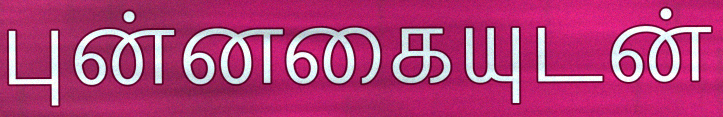
புன்னகையுடன்